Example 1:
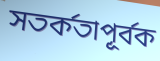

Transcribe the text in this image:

সতর্কতাপূর্বক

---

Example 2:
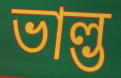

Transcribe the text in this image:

ভাল্ভ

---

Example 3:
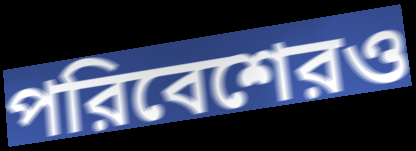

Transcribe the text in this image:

পরিবেশেরও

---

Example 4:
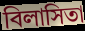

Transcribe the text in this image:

বিলাসিতা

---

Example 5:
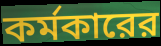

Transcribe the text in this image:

কর্মকারের